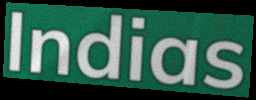
Indias